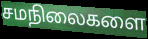
சமநிலைகளை